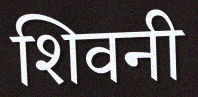
शिवनी